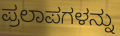
ಪ್ರಲಾಪಗಳನ್ನು